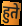
हुते